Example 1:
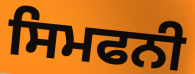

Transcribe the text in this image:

ਸਿਮਫਨੀ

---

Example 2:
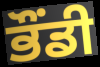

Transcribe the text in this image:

ਭੌਂਡੀ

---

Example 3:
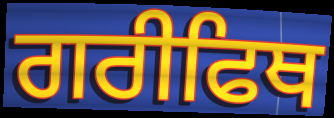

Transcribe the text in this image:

ਗਰੀਫਿਥ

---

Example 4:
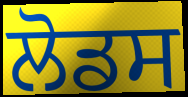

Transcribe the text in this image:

ਲੋਡਸ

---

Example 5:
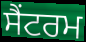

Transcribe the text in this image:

ਸੈਂਟਰਮ